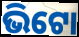
ଭିଟୋ